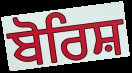
ਬੋਰਿਸ਼